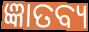
ଜ୍ଞାତବ୍ୟ